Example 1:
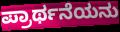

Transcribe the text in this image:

ಪ್ರಾರ್ಥನೆಯನು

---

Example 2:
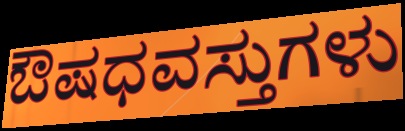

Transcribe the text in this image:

ಔಷಧವಸ್ತುಗಳು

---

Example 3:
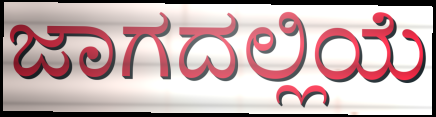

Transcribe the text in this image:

ಜಾಗದಲ್ಲಿಯೆ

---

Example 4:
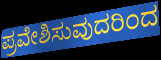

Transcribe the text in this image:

ಪ್ರವೇಶಿಸುವುದರಿಂದ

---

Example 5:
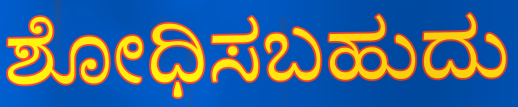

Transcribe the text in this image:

ಶೋಧಿಸಬಹುದು